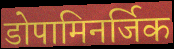
डोपामिनर्जिक